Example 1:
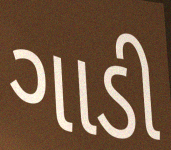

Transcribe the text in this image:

ગાડી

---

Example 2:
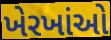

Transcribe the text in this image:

ખેરખાંઓ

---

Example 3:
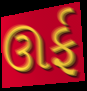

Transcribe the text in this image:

ઊર્ફ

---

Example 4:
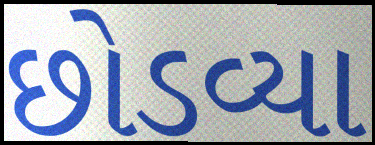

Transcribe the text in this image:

છોડવ્યા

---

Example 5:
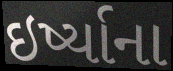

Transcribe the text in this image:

ઇર્ષ્યાના